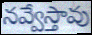
నవ్వేస్తావు